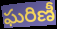
ఘరిణీ